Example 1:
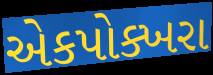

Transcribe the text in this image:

એકપોક્ખરા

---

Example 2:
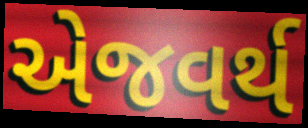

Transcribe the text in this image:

એજવર્થ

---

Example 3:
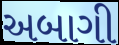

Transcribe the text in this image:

અબાગી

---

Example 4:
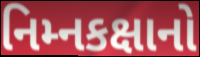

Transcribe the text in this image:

નિમ્નકક્ષાનો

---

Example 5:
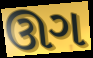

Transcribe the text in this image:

ઊગ